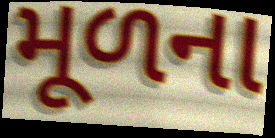
મૂળના